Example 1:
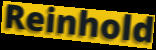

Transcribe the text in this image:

Reinhold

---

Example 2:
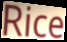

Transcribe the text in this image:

Rice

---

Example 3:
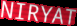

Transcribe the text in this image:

NIRYAT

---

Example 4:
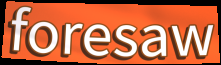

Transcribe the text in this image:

foresaw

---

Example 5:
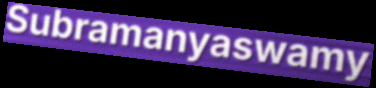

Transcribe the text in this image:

Subramanyaswamy